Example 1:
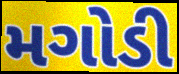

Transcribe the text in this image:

મગોડી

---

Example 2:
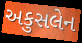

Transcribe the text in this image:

અકુસલેન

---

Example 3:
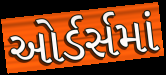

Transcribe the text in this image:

ઓર્ડર્સમાં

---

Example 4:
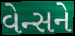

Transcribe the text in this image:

વેન્સને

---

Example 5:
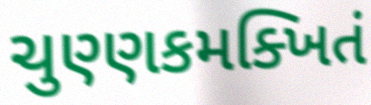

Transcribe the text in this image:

ચુણ્ણકમક્ખિતં